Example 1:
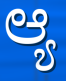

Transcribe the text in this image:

ಆ್ಯ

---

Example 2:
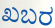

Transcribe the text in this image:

ಖಬರ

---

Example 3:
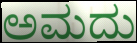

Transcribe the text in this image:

ಅಮದು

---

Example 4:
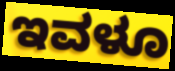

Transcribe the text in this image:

ಇವಳೂ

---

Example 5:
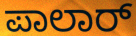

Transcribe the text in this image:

ಪಾಲಾರ್